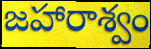
జహారాశ్వం